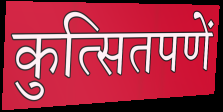
कुत्सितपणें